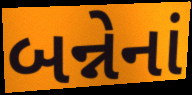
બન્નેનાં